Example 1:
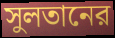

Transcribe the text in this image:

সুলতানের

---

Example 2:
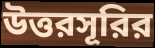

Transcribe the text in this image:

উত্তরসূরির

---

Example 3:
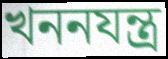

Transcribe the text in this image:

খননযন্ত্র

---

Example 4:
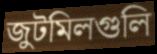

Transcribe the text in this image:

জুটমিলগুলি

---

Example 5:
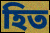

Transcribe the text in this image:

হিত